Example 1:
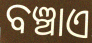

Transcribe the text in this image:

ବଞ୍ଚାଏ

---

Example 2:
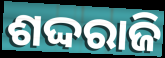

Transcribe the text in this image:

ଶଦ୍ଦରାଜି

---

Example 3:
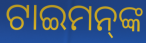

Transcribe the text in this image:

ଟାଇମନ୍‌ଙ୍କ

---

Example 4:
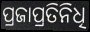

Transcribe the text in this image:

ପ୍ରଜାପ୍ରତିନିଧି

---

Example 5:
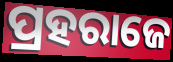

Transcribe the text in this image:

ପ୍ରହରାଜେ